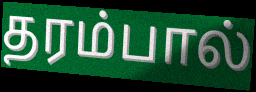
தரம்பால்